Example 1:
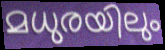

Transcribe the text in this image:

മധുരയിലും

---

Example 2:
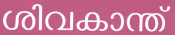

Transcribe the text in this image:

ശിവകാന്ത്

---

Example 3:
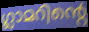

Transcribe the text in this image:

ഗ്ലാമറിന്റെ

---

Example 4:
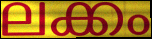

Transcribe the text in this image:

ലക്കം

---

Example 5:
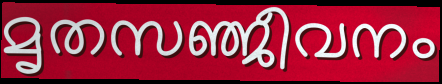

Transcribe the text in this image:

മൃതസഞ്ജീവനം